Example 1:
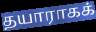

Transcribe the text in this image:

தயாராகக்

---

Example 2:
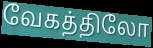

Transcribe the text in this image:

வேகத்திலோ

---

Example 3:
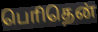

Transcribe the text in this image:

பெரிதென்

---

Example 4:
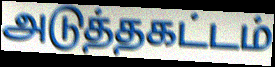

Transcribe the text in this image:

அடுத்தகட்டம்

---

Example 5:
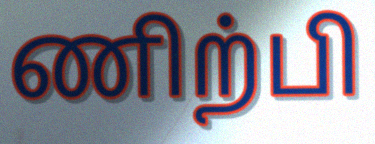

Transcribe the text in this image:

ணிற்பி